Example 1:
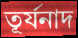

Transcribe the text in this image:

তূর্যনাদ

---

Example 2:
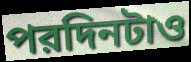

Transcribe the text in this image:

পরদিনটাও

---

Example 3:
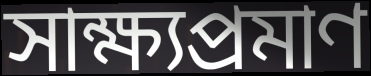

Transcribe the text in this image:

সাক্ষ্যপ্রমাণ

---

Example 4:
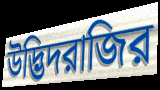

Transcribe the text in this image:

উদ্ভিদরাজির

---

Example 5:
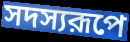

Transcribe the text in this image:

সদস্যরূপে